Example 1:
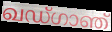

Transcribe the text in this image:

ഖഡ്ഗാഞ്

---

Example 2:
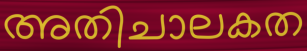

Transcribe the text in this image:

അതിചാലകത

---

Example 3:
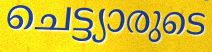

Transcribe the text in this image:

ചെട്ട്യാരുടെ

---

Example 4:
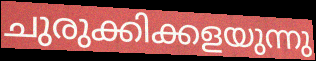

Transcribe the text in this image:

ചുരുക്കിക്കളയുന്നു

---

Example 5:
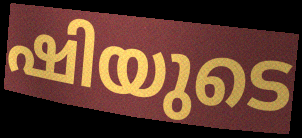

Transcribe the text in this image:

ഷിയുടെ